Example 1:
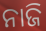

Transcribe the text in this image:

ନାଜି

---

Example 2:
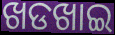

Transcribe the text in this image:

ଖଡଖାଇ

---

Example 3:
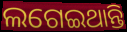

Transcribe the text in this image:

ଲଗେଇଥାନ୍ତି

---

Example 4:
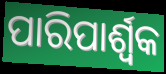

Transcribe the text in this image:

ପାରିପାର୍ଶ୍ଵକ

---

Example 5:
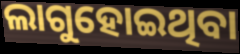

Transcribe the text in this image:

ଲାଗୁହୋଇଥିବା